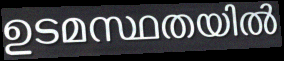
ഉടമസ്ഥതയിൽ